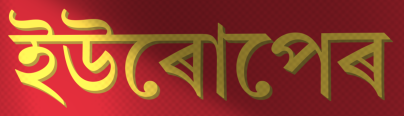
ইউৰোপেৰ